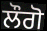
ਲੌਗੋ